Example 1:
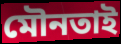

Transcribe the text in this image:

মৌনতাই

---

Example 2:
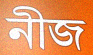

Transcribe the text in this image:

নীজ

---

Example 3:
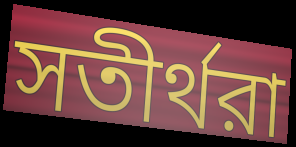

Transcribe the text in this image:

সতীর্থরা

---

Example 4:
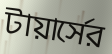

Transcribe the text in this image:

টায়ার্সের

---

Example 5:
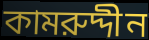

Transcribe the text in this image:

কামরুদ্দীন